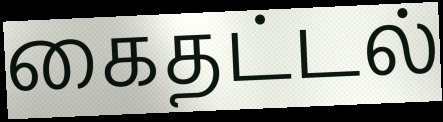
கைதட்டல்